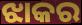
ଝାକର